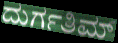
ದುರ್ಗತಿಮ್